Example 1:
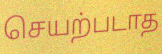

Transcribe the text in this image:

செயற்படாத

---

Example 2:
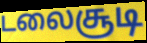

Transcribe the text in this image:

டலைசூடி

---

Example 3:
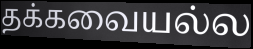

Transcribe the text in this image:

தக்கவையல்ல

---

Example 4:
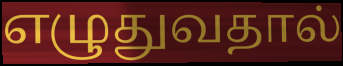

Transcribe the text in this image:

எழுதுவதால்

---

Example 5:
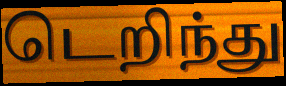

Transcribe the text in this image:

டெறிந்து